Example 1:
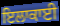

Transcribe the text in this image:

ਇਲਾਕਾਈ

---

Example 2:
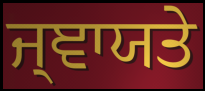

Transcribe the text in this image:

ਜ੍ਞਾਯਤੇ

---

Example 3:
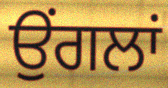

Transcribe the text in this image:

ਉਂਗਲਾਂ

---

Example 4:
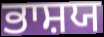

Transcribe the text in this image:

ਭਾਸ਼ਯ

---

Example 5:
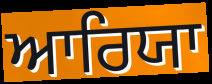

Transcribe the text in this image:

ਆਰਿਯਾ